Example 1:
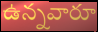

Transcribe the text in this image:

ఉన్నవారూ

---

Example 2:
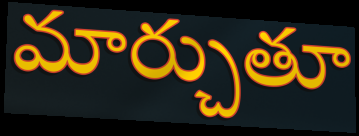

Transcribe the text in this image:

మార్చుతూ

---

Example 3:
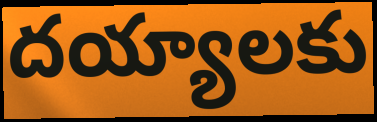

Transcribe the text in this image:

దయ్యాలకు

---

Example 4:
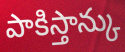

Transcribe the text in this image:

పాకిస్తాన్కు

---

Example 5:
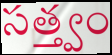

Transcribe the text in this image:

సత్త్వం